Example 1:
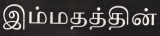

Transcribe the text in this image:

இம்மதத்தின்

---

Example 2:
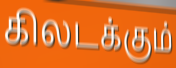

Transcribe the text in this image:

கிலடக்கும்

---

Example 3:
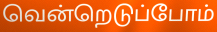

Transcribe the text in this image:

வென்றெடுப்போம்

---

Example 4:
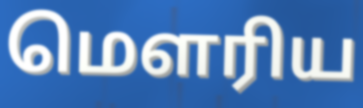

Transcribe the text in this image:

மெளரிய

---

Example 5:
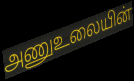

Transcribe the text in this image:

அணுஉலையின்